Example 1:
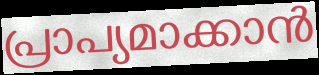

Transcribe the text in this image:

പ്രാപ്യമാക്കാൻ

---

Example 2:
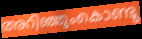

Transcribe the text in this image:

അറിഞ്ഞുംകൊണ്ടു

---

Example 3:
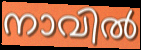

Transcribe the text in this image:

നാവിൽ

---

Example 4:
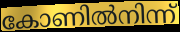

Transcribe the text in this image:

കോണിൽനിന്ന്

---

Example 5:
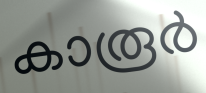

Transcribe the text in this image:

കാരൂർ